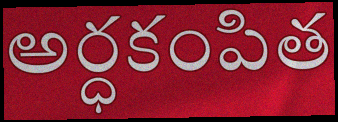
అర్ధకంపిత